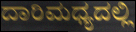
ದಾರಿಮಧ್ಯದಲ್ಲಿ